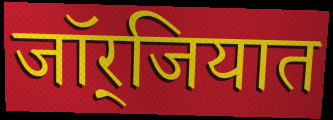
जॉर्जियात